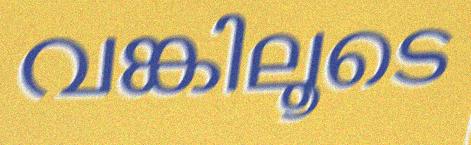
വങ്കിലൂടെ